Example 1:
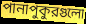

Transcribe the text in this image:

পানাপুকুরগুলো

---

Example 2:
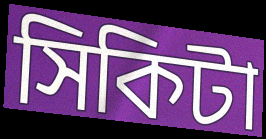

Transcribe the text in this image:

সিকিটা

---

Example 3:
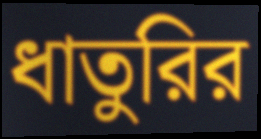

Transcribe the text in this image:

ধাতুরির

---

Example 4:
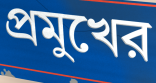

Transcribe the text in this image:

প্রমুখের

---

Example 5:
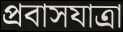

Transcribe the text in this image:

প্রবাসযাত্রা